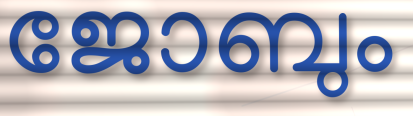
ജോബും